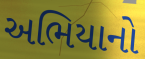
અભિયાનો